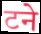
टने